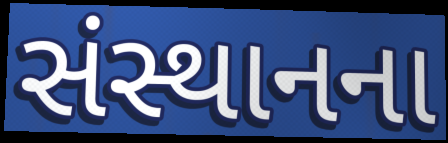
સંસ્થાનના